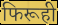
फिरूही